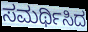
ಸಮರ್ಥಿಸಿದ